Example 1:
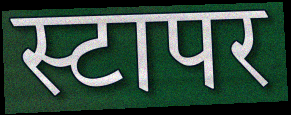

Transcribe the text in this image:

स्टापर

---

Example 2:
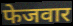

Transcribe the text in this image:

फेजवार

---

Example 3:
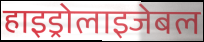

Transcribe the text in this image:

हाइड्रोलाइजेबल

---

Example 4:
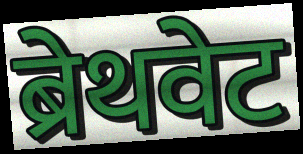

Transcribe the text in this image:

ब्रेथवेट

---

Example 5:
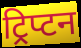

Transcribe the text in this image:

ट्रिप्टन